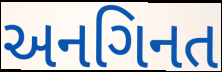
અનગિનત